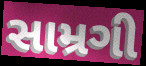
સામ્રગી